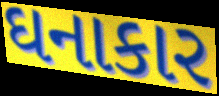
ઘનાકાર